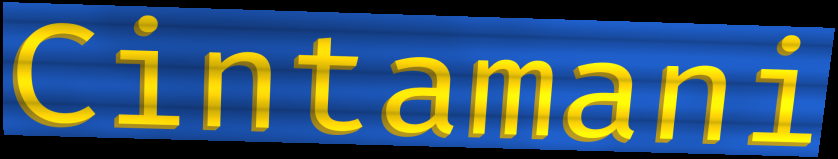
Cintamani